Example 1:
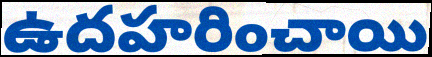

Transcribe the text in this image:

ఉదహరించాయి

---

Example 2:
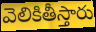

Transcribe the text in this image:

వెలికితీస్తారు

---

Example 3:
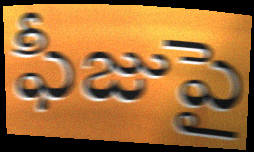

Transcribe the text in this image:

ఫీజుపై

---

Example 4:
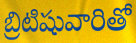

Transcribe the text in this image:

బ్రిటిషువారితో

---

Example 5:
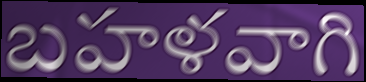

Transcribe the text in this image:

బహళవాగి